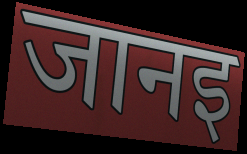
जानइ